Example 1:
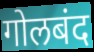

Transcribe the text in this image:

गोलबंद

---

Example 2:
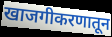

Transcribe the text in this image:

खाजगीकरणातून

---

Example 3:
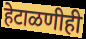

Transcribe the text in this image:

हेटाळणीही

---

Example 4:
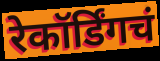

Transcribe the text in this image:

रेकॉर्डिंगचं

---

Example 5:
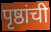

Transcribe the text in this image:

पृष्ठांची